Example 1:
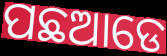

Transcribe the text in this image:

ପଛଆଡେ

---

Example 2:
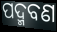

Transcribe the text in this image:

ପଦ୍ମବଣ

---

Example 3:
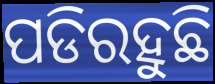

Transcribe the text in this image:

ପଡିରହୁଛି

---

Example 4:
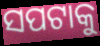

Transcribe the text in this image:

ସପଟାକୁ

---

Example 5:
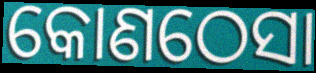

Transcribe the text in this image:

କୋଣଠେସା